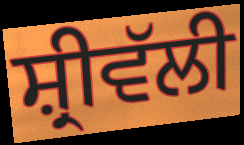
ਸ਼੍ਰੀਵੱਲੀ